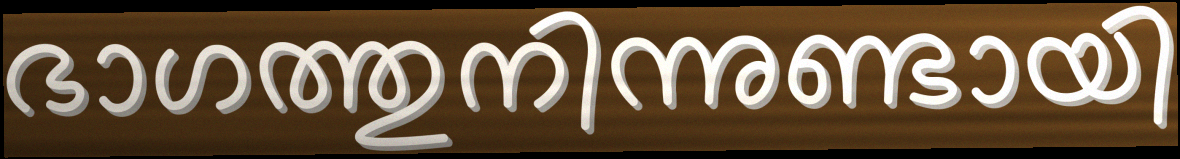
ഭാഗത്തുനിന്നുണ്ടായി